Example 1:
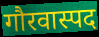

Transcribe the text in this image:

गौरवास्पद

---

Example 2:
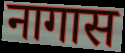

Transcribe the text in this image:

नागास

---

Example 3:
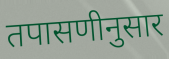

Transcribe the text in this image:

तपासणीनुसार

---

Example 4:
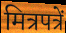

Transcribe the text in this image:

मित्रपत्रें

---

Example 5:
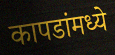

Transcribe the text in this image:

कापडांमध्ये